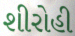
શીરોહી